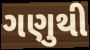
ગણુથી